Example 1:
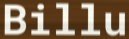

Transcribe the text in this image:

Billu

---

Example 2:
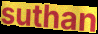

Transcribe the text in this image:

suthan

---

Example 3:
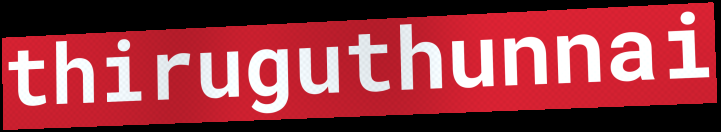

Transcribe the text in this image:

thiruguthunnai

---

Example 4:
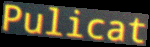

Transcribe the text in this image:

Pulicat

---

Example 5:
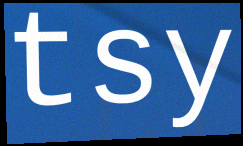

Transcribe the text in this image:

tsy